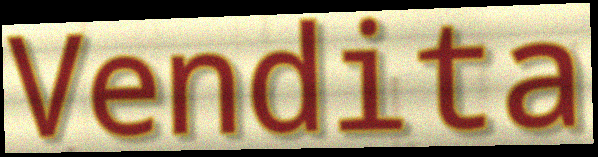
Vendita